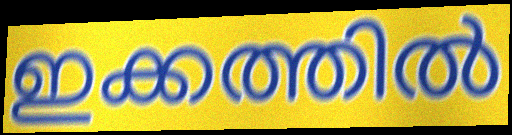
ഇക്കത്തിൽ